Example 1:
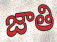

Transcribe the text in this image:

జాతి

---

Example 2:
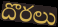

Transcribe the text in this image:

దొరలు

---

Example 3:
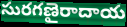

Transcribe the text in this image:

సురగణైరాదాయ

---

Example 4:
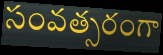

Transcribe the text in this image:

సంవత్సరంగా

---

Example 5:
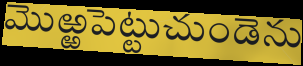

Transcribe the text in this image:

మొఱ్ఱపెట్టుచుండెను